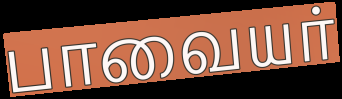
பாவையர்